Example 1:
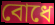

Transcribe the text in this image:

বোধে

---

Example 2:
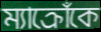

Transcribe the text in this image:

ম্যাক্রোঁকে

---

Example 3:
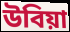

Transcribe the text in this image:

উবিয়া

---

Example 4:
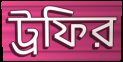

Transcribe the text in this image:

ট্রফির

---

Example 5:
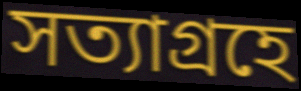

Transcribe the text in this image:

সত্যাগ্রহে